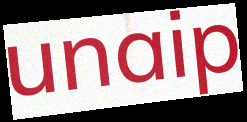
unaip